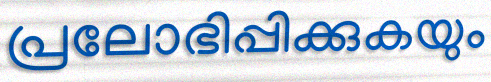
പ്രലോഭിപ്പിക്കുകയും